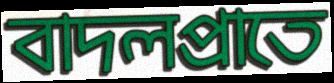
বাদলপ্রাতে